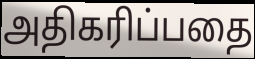
அதிகரிப்பதை